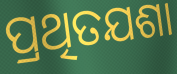
ପ୍ରଥିତଯଶା